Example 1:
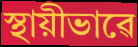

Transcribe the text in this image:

স্থায়ীভাৱে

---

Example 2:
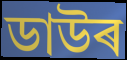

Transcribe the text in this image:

ডাউৰ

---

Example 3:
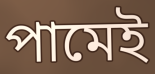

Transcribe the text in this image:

পামেই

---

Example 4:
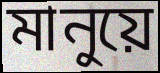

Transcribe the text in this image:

মানুয়ে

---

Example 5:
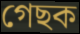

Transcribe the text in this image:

গেছক